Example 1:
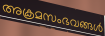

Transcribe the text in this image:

അക്രമസംഭവങ്ങൾ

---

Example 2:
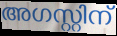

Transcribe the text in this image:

അഗസ്റ്റിന്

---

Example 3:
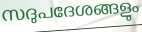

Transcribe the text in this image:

സദുപദേശങ്ങളും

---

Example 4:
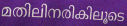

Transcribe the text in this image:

മതിലിനരികിലൂടെ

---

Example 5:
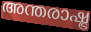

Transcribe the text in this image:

അന്തരാഷ്ട്ര